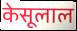
केसूलाल